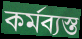
কর্মব্যস্ত